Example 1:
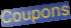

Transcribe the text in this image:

Coupons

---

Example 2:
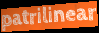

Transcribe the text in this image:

patrilinear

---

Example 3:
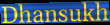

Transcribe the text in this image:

Dhansukh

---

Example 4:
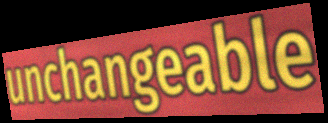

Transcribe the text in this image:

unchangeable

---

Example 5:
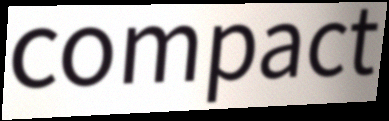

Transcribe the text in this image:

compact